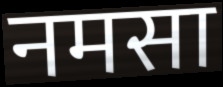
नमसा